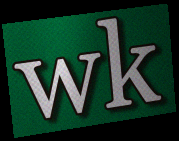
wk